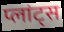
प्लांट्स